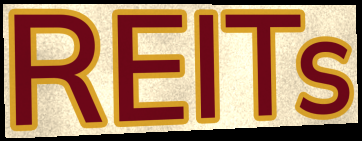
REITs